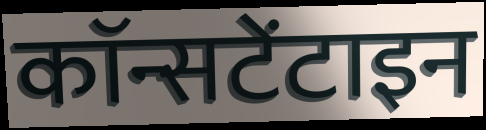
कॉन्सटेंटाइन